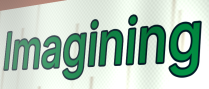
Imagining